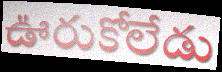
ఊరుకోలేడు